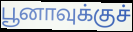
பூனாவுக்குச்